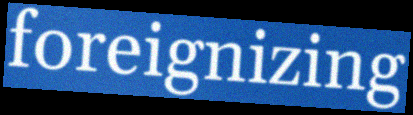
foreignizing